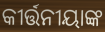
କୀର୍ତ୍ତନୀୟାଙ୍କ